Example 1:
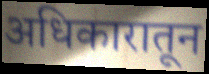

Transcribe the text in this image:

अधिकारातून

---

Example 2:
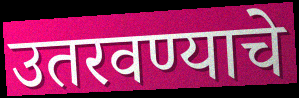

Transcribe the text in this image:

उतरवण्याचे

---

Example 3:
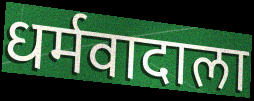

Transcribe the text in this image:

धर्मवादाला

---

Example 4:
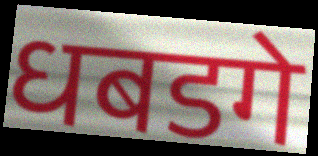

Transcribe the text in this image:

धबडगे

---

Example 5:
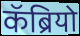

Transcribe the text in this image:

कॅब्रियो